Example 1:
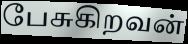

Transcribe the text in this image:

பேசுகிறவன்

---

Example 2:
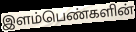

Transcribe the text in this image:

இளம்பெண்களின்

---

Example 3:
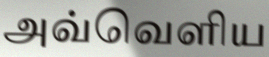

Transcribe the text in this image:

அவ்வெளிய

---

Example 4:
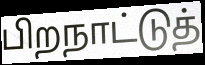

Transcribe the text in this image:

பிறநாட்டுத்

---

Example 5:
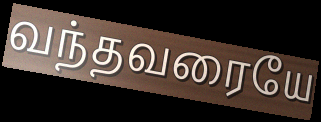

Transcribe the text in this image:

வந்தவரையே